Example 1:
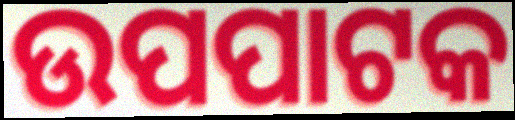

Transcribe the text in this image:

ଉପପାଟକ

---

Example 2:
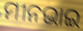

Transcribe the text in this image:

ମୀନଭାଇ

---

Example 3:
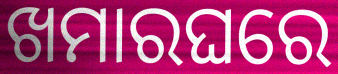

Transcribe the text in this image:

ଖମାରଘରେ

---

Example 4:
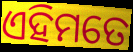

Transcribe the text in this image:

ଏହିମତେ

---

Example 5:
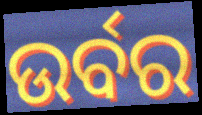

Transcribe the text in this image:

ଉର୍ବର